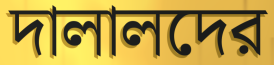
দালালদের